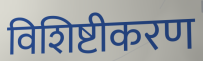
विशिष्टीकरण